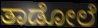
ತಾಡೋಲೆ